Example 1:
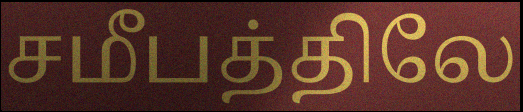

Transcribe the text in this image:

சமீபத்திலே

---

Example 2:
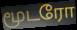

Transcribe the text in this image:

மூடரோ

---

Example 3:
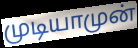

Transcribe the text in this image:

முடியாமுன்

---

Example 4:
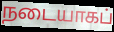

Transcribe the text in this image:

நடையாகப்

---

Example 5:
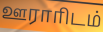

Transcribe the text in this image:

ஊராரிடம்